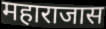
महाराजास